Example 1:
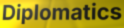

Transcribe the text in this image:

Diplomatics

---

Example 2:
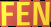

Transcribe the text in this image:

FEN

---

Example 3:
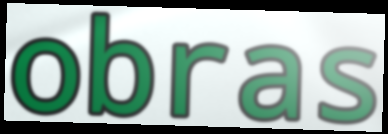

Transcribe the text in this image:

obras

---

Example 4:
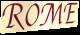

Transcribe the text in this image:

ROME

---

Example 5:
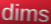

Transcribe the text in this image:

dims